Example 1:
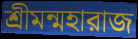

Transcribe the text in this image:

শ্রীমন্মহারাজ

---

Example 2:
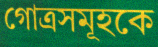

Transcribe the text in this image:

গোত্রসমূহকে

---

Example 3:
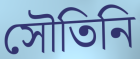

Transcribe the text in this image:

সৌতিনি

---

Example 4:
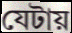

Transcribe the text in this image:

যেটায়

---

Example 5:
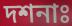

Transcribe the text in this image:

দশনাঃ